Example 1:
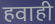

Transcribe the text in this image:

हवाही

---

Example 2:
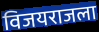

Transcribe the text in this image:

विजयराजला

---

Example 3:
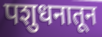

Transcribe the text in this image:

पशुधनातून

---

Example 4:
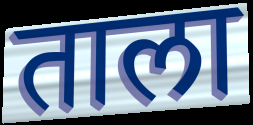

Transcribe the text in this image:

ताला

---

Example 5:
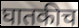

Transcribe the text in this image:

घातकीच